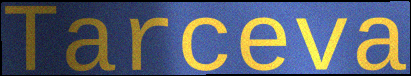
Tarceva